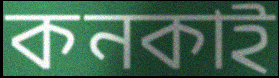
কনকাই